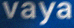
vaya